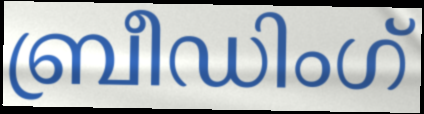
ബ്രീഡിംഗ്